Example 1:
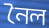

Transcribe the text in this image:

নৈল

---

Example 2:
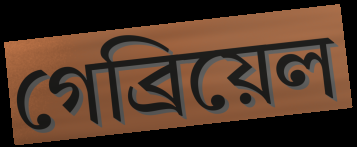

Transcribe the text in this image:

গেব্রিয়েল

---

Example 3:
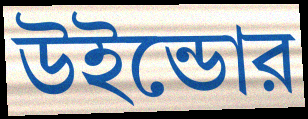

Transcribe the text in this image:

উইন্ডোর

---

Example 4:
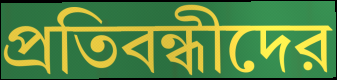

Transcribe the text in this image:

প্রতিবন্ধীদের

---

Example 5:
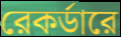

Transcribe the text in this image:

রেকর্ডারে